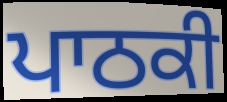
ਪਾਠਕੀ